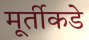
मूर्तीकडे